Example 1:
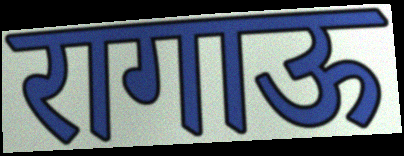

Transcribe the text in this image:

रागाऊ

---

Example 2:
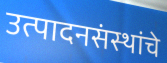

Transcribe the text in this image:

उत्पादनसंस्थांचे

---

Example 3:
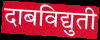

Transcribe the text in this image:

दाबविद्युती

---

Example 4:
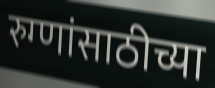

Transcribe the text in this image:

रुग्णांसाठीच्या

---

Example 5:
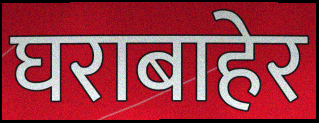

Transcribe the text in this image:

घराबाहेर